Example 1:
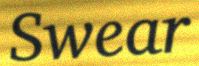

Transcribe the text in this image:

Swear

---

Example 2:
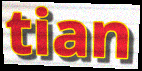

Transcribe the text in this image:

tian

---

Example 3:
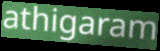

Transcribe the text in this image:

athigaram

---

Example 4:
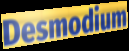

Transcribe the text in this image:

Desmodium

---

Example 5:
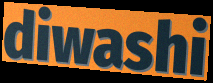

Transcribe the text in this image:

diwashi